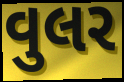
વુલર